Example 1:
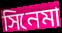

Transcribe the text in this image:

সিনেমা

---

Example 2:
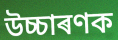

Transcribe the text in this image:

উচ্চাৰণক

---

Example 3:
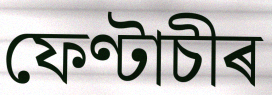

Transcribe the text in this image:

ফেণ্টাচীৰ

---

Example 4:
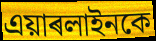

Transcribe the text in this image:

এয়াৰলাইনকে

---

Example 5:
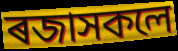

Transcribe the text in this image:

ৰজাসকলে